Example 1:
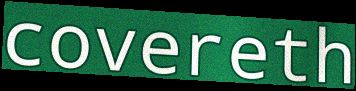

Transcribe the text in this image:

covereth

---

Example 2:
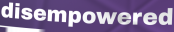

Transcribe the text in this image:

disempowered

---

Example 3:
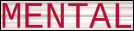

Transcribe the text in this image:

MENTAL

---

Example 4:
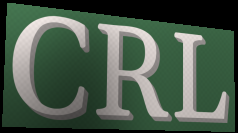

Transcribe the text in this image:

CRL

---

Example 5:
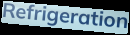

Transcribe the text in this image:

Refrigeration